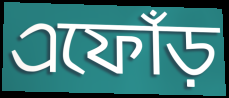
এফোঁড়